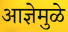
आज्ञेमुळे